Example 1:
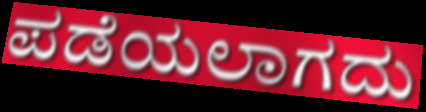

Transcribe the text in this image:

ಪಡೆಯಲಾಗದು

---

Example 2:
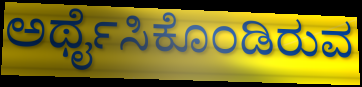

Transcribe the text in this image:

ಅರ್ಥೈಸಿಕೊಂಡಿರುವ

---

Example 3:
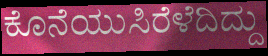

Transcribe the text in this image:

ಕೊನೆಯುಸಿರೆಳೆದಿದ್ದು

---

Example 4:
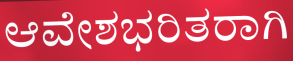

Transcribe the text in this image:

ಆವೇಶಭರಿತರಾಗಿ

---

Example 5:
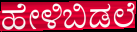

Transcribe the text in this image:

ಹೇಳಿಬಿಡಲೆ